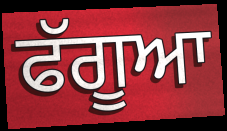
ਫੱਗੂਆ